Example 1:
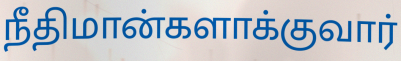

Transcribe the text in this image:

நீதிமான்களாக்குவார்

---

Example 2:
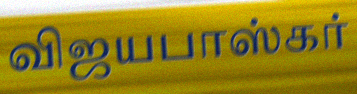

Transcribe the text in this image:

விஜயபாஸ்கர்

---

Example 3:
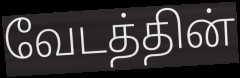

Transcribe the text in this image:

வேடத்தின்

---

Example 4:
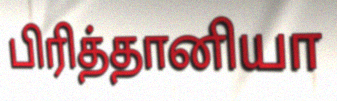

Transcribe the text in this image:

பிரித்தானியா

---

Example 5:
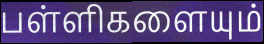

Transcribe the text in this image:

பள்ளிகளையும்